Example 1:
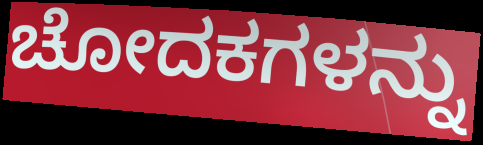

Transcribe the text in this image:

ಚೋದಕಗಳನ್ನು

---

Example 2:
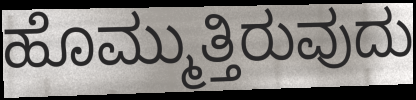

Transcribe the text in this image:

ಹೊಮ್ಮುತ್ತಿರುವುದು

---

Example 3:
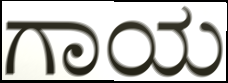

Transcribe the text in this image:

ಗಾಯ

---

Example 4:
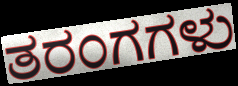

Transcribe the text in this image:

ತರಂಗಗಳು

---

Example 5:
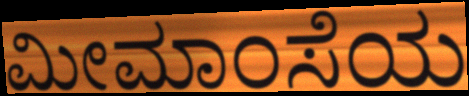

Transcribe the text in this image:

ಮೀಮಾಂಸೆಯ